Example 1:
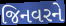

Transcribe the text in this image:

જિનવરને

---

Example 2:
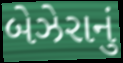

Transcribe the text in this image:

બેઝેરાનું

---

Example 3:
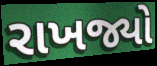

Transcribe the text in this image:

રાખજ્યો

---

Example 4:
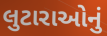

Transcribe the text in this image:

લુટારાઓનું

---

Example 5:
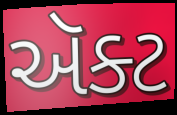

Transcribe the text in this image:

ઍૅક્ટ